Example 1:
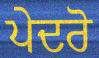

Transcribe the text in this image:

ਪੇਦਰੋ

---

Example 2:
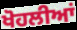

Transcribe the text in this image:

ਖੋਹਲੀਆਂ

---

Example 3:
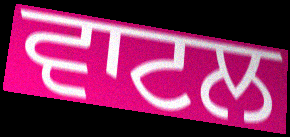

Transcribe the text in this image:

ਵਾਟਲ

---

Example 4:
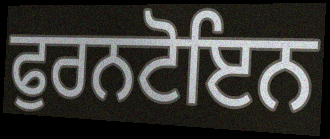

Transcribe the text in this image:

ਫੁਰਨਟੋਇਨ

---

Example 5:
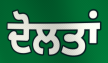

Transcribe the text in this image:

ਦੋਲਤਾਂ